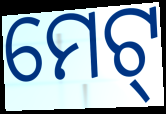
ମେଟ୍